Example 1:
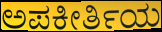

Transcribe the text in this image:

ಅಪಕೀರ್ತಿಯ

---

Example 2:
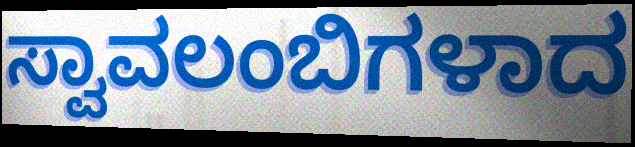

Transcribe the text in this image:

ಸ್ವಾವಲಂಬಿಗಳಾದ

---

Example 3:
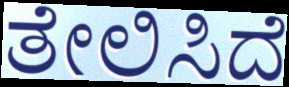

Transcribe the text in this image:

ತೇಲಿಸಿದೆ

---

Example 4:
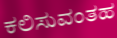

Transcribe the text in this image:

ಕಲಿಸುವಂತಹ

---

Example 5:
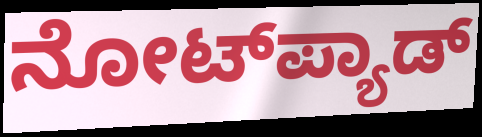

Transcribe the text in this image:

ನೋಟ್‌ಪ್ಯಾಡ್